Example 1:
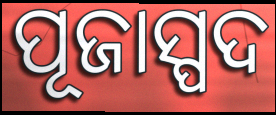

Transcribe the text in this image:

ପୂଜାସ୍ପଦ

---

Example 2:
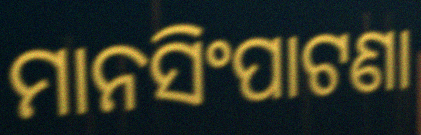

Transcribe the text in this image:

ମାନସିଂପାଟଣା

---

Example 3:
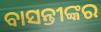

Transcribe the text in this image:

ବାସନ୍ତୀଙ୍କର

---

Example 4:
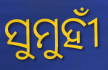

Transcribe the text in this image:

ସୁମୁହୀଁ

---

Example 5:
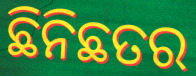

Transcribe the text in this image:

ଛିନିଛତର